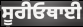
ਸੂਰੀਓਥਾਈ